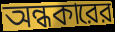
অন্ধকারের